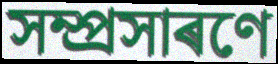
সম্প্ৰসাৰণে